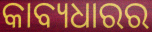
କାବ୍ୟଧାରର